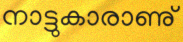
നാട്ടുകാരാണു്